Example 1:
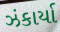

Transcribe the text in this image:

ઝંકાર્યા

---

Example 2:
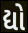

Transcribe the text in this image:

દ્યો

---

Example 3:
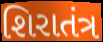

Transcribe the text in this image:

શિરાતંત્ર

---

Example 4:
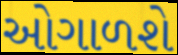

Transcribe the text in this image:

ઓગાળશે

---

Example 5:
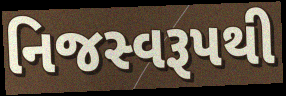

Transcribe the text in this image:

નિજસ્વરૂપથી